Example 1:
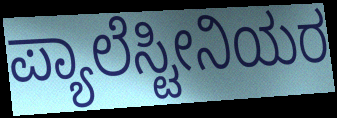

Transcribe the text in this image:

ಪ್ಯಾಲೆಸ್ಟೀನಿಯರ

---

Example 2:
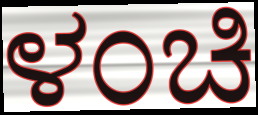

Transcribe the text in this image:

ಳಂಚಿ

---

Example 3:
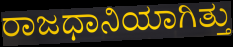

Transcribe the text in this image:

ರಾಜಧಾನಿಯಾಗಿತ್ತು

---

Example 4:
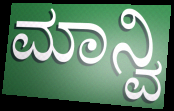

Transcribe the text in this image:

ಮಾನ್ವಿ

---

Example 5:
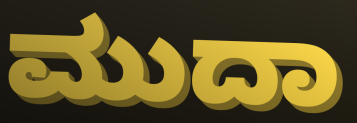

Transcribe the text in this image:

ಮುದಾ